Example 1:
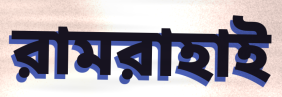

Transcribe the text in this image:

রামরাহাই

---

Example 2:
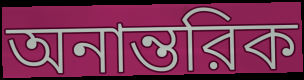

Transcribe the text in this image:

অনান্তরিক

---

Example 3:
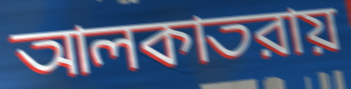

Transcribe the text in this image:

আলকাতরায়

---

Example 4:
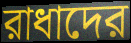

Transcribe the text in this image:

রাধাদের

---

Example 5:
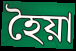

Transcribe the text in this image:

হৈয়া